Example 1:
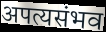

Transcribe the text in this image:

अपत्यसंभव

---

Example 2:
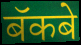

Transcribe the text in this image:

बॅकबे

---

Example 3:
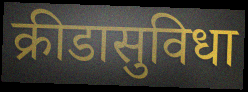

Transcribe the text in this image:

क्रीडासुविधा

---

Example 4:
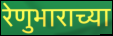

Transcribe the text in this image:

रेणुभाराच्या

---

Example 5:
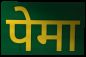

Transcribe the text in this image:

पेमा